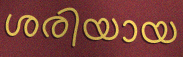
ശരിയായ